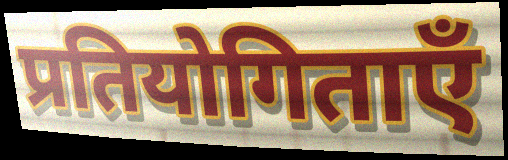
प्रतियोगिताएँ